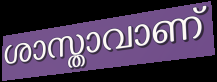
ശാസ്താവാണ്